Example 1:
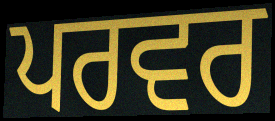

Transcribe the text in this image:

ਪਰਵਰ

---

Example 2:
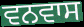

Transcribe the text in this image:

ਵਨਵਾਸ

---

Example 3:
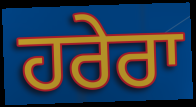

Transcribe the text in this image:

ਹਰੇਰਾ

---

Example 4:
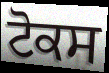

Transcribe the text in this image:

ਟੋਕਸ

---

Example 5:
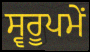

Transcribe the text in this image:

ਸ੍ਵਰੂਪਮੇਂ